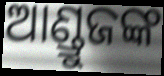
ଆଣ୍ଡ୍ରୁଜଙ୍କ